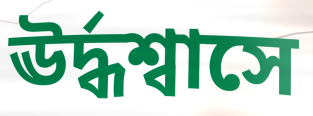
ঊর্দ্ধশ্বাসে